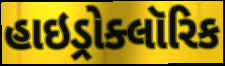
હાઇડ્રોક્લૉરિક